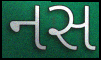
નસ